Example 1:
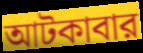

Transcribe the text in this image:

আটকাবার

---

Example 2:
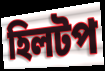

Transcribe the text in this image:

হিলটপ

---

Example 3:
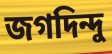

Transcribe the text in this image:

জগদিন্দু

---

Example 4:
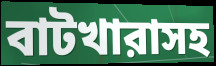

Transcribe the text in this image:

বাটখারাসহ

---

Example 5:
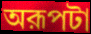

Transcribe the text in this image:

অরূপটা